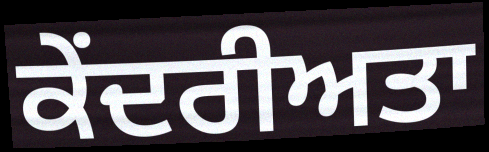
ਕੇਂਦਰੀਅਤਾ